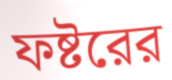
ফষ্টরের